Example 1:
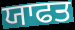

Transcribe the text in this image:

ਯਾਫਤ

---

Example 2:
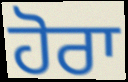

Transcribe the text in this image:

ਹੋਰਾ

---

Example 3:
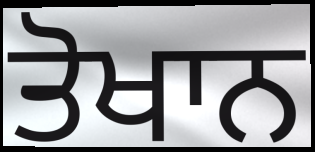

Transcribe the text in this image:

ਤੋਖਾਨ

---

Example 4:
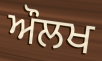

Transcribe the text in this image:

ਔਲਖ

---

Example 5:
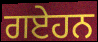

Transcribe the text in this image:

ਗਏਹਨ